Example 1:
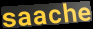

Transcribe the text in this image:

saache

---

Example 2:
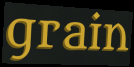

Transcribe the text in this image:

grain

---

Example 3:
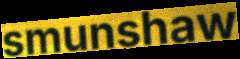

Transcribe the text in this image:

smunshaw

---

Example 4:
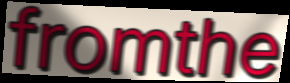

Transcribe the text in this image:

fromthe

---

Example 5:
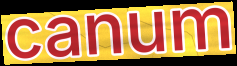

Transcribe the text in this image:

canum